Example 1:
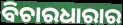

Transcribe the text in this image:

ବିଚାରଧାରାର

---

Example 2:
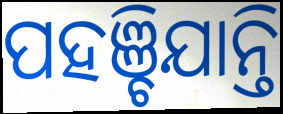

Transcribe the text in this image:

ପହଞ୍ଚିଯାନ୍ତି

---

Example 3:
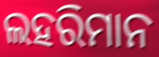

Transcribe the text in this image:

ଲହରିମାନ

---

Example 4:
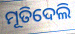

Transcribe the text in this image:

ମୂତିଦେଲି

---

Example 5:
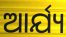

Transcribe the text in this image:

ଆର୍ଯ୍ୟ